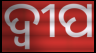
ଦ୍ବୀପ